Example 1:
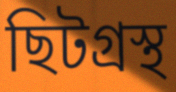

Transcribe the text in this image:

ছিটগ্রস্থ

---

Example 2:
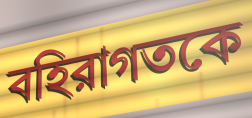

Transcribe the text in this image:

বহিরাগতকে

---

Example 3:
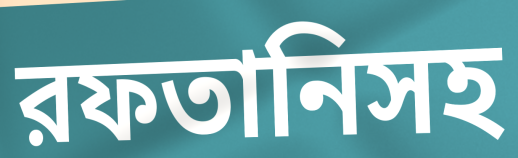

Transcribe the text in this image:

রফতানিসহ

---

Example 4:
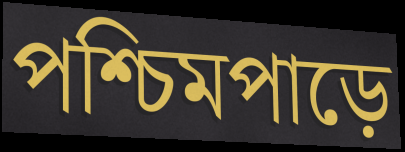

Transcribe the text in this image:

পশ্চিমপাড়ে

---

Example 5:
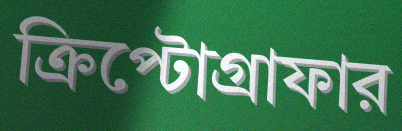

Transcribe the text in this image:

ক্রিপ্টোগ্রাফার